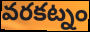
వరకట్నం